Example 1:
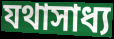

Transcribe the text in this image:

যথাসাধ্য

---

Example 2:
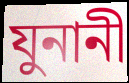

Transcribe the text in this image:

যুনানী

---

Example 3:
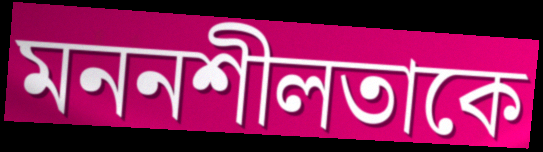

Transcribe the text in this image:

মননশীলতাকে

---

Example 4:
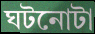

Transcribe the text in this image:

ঘটনোটা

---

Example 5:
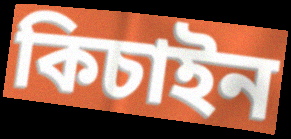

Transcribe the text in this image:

কিচাইন